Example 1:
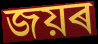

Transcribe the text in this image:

জয়ৰ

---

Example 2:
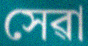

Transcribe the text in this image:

সেৱা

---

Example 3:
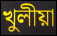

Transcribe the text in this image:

খুলীয়া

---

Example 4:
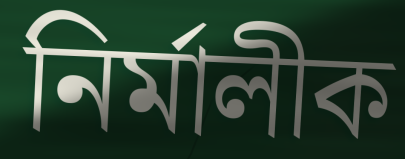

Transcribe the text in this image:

নিৰ্মালীক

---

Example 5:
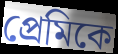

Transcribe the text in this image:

প্ৰেমিকে